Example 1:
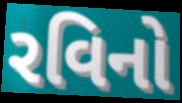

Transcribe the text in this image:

રવિનો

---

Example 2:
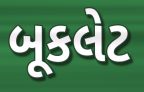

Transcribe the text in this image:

બૂકલેટ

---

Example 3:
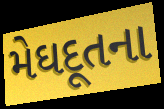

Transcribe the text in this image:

મેઘદૂતના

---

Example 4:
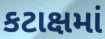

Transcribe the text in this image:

કટાક્ષમાં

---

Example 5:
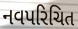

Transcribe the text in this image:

નવપરિચિત